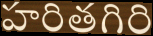
హరితగిరి